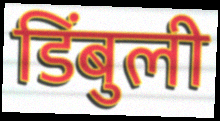
डिंबुली